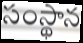
సంస్థాన